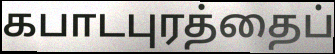
கபாடபுரத்தைப்